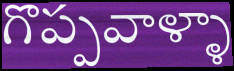
గొప్పవాళ్ళా